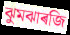
ঝুমঝাৰজি